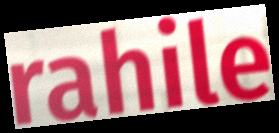
rahile